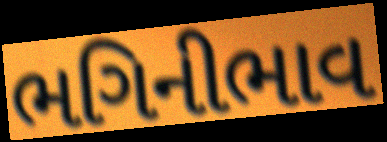
ભગિનીભાવ